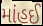
માંહઈ